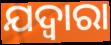
ଯଦ୍ୱାରା